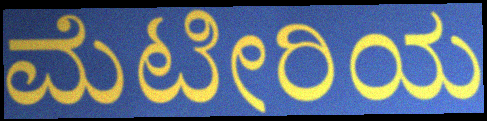
ಮೆಟೀರಿಯ